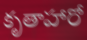
కృతాహారో